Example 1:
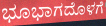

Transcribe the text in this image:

ಭೂಭಾಗದೊಳಗೆ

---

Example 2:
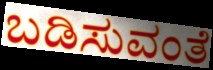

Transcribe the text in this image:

ಬಡಿಸುವಂತೆ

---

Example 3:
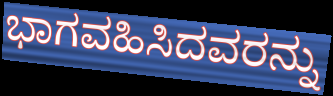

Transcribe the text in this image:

ಭಾಗವಹಿಸಿದವರನ್ನು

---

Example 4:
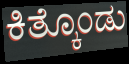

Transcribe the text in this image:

ಕಿತ್ಕೊಂಡು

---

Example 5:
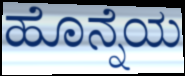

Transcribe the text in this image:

ಹೊನ್ನೆಯ